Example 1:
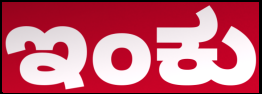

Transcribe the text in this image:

ಇಂಕು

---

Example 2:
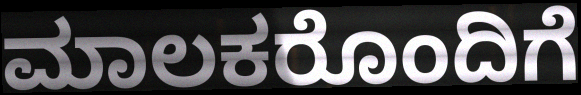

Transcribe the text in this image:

ಮಾಲಕರೊಂದಿಗೆ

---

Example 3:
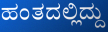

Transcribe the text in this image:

ಹಂತದಲ್ಲಿದ್ದು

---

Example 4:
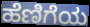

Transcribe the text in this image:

ಹೆಣಿಗೆಯ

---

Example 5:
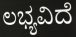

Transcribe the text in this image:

ಲಭ್ಯವಿದೆ